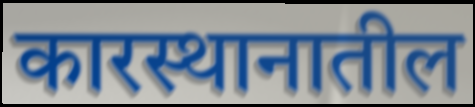
कारस्थानातील